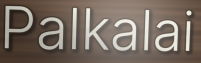
Palkalai